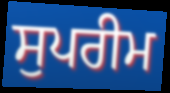
ਸੁਪਰੀਮ